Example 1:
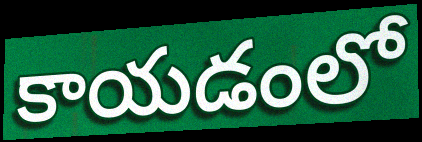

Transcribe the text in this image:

కాయడంలో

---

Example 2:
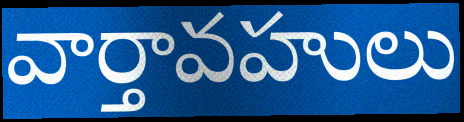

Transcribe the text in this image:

వార్తావహులు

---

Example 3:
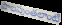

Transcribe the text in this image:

పాలపుంతలాంటి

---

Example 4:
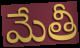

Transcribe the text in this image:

మేతీ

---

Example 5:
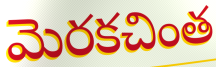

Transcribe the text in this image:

మెరకచింత